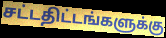
சட்டதிட்டங்களுக்கு